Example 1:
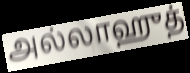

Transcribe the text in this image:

அல்லாஹுத்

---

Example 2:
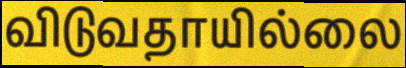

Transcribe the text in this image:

விடுவதாயில்லை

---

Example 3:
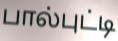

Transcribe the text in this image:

பால்புட்டி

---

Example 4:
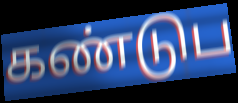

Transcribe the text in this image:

கண்டுப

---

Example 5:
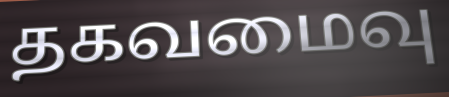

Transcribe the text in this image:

தகவமைவு